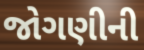
જોગણીની